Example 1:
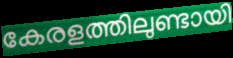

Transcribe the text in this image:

കേരളത്തിലുണ്ടായി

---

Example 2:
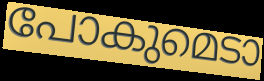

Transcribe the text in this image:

പോകുമെടാ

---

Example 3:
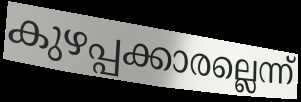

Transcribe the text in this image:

കുഴപ്പക്കാരല്ലെന്ന്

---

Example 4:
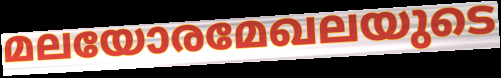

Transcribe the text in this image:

മലയോരമേഖലയുടെ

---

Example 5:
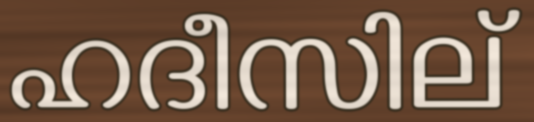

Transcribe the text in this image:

ഹദീസില്